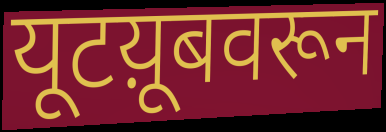
यूटय़ूबवरून